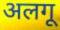
अलगू